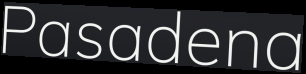
Pasadena